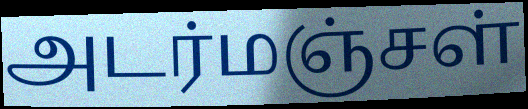
அடர்மஞ்சள்